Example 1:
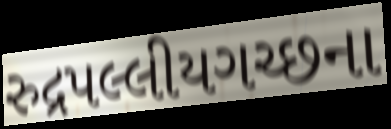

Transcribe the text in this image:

રુદ્રપલ્લીયગચ્છના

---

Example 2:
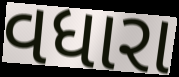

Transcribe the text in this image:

વધારા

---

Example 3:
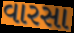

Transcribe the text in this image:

વારસા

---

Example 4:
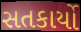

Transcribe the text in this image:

સતકાર્યો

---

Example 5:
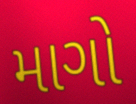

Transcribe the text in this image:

માગો